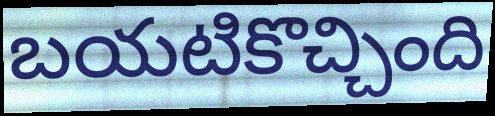
బయటికొచ్చింది